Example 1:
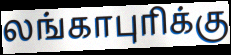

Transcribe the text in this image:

லங்காபுரிக்கு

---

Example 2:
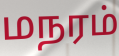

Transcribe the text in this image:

மநரம்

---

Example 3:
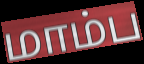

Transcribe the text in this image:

மாம்ப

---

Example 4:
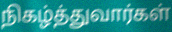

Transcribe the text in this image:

நிகழ்த்துவார்கள்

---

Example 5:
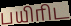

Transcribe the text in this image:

பயிரிட